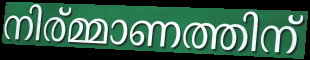
നിര്മ്മാണത്തിന്